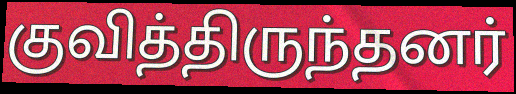
குவித்திருந்தனர்